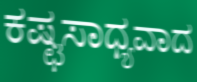
ಕಷ್ಟಸಾಧ್ಯವಾದ